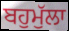
ਬਹੁਮੁੱਲਾ